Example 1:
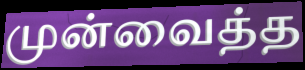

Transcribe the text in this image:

முன்வைத்த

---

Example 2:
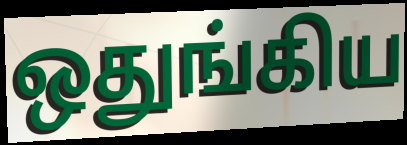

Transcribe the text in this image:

ஒதுங்கிய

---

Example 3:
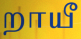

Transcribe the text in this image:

றாயீ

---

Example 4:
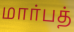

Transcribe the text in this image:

மார்பத்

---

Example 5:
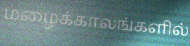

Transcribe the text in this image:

மழைக்காலங்களில்